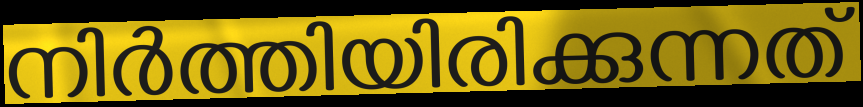
നിർത്തിയിരിക്കുന്നത്